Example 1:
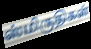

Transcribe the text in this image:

ஸ்மிருதிகள்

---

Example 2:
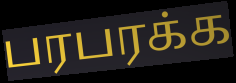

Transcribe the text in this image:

பரபரக்க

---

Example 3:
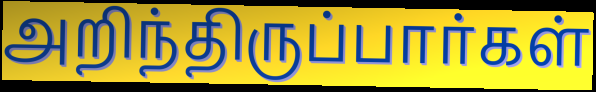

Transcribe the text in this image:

அறிந்திருப்பார்கள்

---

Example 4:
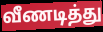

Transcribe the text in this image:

வீணடித்து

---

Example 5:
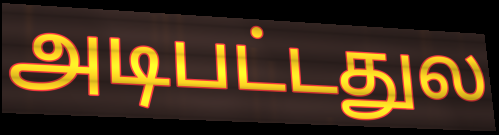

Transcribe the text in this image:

அடிபட்டதுல